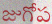
జుగోప